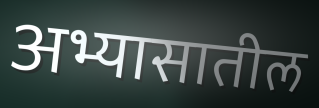
अभ्यासातील